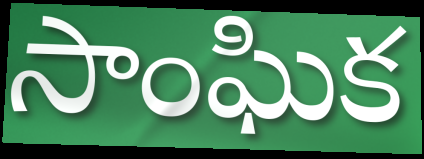
సాంఘిక